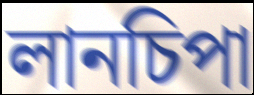
লানচিপা